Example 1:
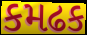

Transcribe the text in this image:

કમઢક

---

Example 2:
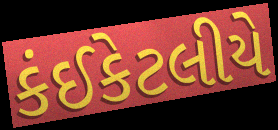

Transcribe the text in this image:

કંઈકેટલીયે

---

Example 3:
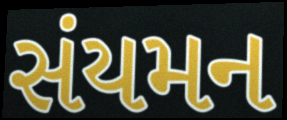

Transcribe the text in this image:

સંયમન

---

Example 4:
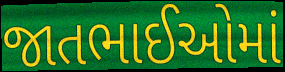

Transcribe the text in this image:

જાતભાઈઓમાં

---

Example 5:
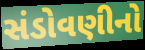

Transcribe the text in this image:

સંડોવણીનો